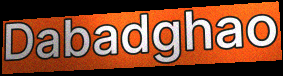
Dabadghao